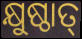
କ୍ଷୁଷ୍ଠାତ୍